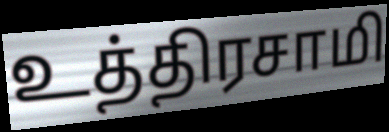
உத்திரசாமி